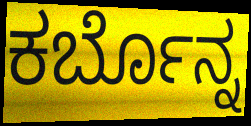
ಕರ್ಬೊನ್ನ